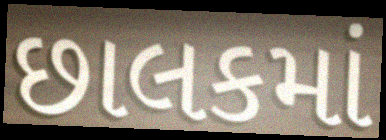
છાલકમાં